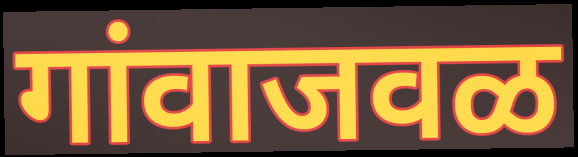
गांवाजवळ